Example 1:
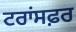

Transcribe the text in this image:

ਟਰਾਂਸਫ਼ਰ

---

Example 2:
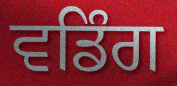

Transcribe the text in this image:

ਵਡਿੰਗ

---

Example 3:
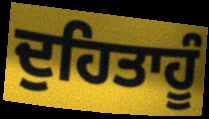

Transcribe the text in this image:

ਦੁਹਿਤਾਹੂੰ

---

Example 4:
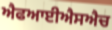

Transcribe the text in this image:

ਐਫਆਈਐਸਐਚ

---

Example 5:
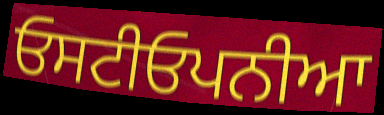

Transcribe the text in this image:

ਓਸਟੀਓਪਨੀਆ